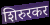
शिरुरकर